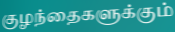
குழந்தைகளுக்கும்